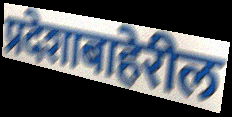
प्रदेशाबाहेरील